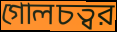
গোলচত্বর